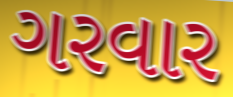
ગરવાર